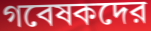
গবেষকদের